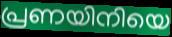
പ്രണയിനിയെ